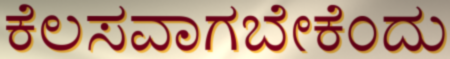
ಕೆಲಸವಾಗಬೇಕೆಂದು